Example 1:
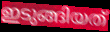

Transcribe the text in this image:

ഇടുങ്ങിയത്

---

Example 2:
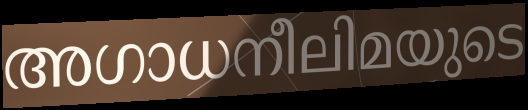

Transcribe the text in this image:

അഗാധനീലിമയുടെ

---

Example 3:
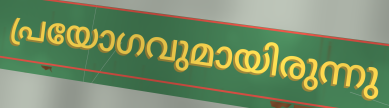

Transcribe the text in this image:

പ്രയോഗവുമായിരുന്നു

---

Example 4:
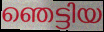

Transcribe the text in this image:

ഞെട്ടിയ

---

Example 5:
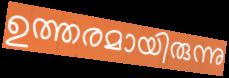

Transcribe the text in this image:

ഉത്തരമായിരുന്നു